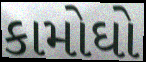
કામોઘો